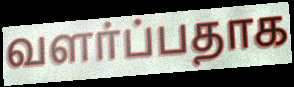
வளர்ப்பதாக